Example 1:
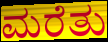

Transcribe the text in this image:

ಮರೆತು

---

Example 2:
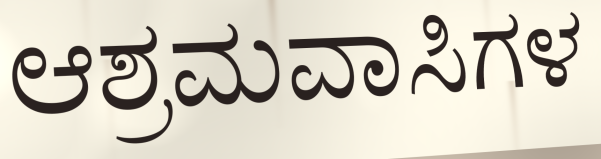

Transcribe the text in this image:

ಆಶ್ರಮವಾಸಿಗಳ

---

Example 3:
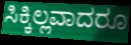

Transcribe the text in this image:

ಸಿಕ್ಕಿಲ್ಲವಾದರೂ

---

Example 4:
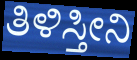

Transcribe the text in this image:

ತಿಳಿಸ್ತೀನಿ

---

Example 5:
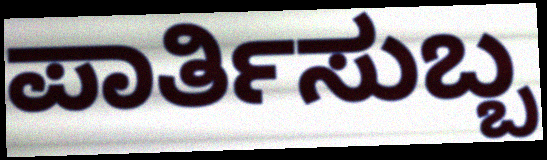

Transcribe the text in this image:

ಪಾರ್ತಿಸುಬ್ಬ